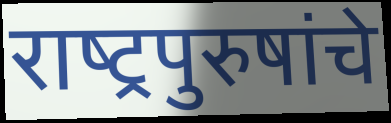
राष्ट्रपुरुषांचे